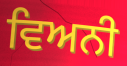
ਵਿਅਨੀ